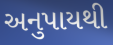
અનુપાયથી